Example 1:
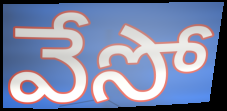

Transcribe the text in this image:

వేసో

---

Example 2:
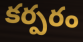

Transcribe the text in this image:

కర్పరం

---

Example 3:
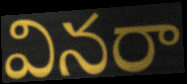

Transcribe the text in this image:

వినరా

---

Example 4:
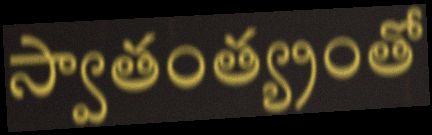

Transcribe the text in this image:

స్వాతంత్య్రంతో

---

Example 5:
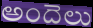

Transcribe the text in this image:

అందెలు